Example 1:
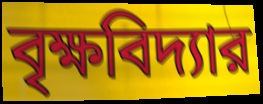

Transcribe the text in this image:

বৃক্ষবিদ্যার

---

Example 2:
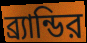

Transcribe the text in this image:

ব্র্যান্ডির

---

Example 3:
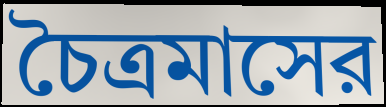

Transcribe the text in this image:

চৈত্রমাসের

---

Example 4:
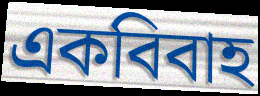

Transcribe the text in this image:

একবিবাহ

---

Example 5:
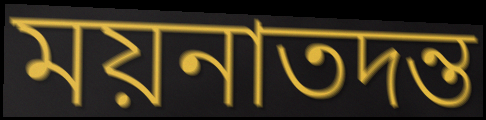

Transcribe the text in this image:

ময়নাতদন্ত